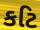
કટિ